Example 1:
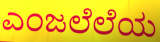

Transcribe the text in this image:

ಎಂಜಲೆಲೆಯ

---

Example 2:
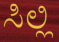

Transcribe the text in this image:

ಸಿಲ್ಲಿ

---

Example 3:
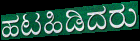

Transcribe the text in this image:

ಹಟಹಿಡಿದರು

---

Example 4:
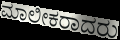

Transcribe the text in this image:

ಮಾಲೀಕರಾದರು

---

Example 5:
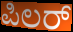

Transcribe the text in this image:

ಪಿಲರ್